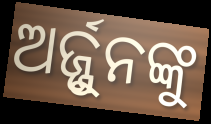
ଅର୍ଜ୍ଜୁନଙ୍କୁ